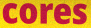
cores